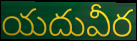
యదువీర